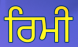
ਰਿਮੀ